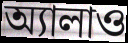
অ্যালাও